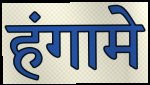
हंगामे